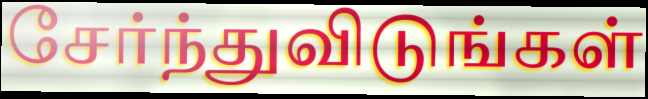
சேர்ந்துவிடுங்கள்